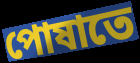
পোষাতে